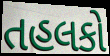
તહલકો